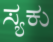
ಸ್ಯಕು